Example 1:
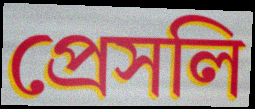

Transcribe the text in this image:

প্রেসলি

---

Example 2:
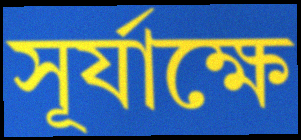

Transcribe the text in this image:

সূর্যাক্ষে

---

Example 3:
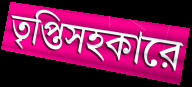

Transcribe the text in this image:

তৃপ্তিসহকারে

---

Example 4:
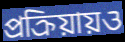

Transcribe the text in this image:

প্রক্রিয়ায়ও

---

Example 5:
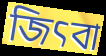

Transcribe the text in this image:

জিৎবা